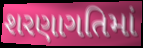
શરણાગતિમાં